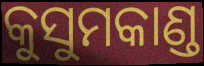
କୁସୁମକାଣ୍ଡ